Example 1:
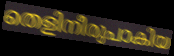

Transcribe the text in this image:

തെളിനീരുപാകിയ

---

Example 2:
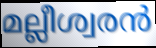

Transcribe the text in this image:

മല്ലീശ്വരൻ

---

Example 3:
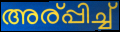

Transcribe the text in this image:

അര്പ്പിച്ച്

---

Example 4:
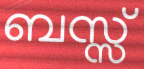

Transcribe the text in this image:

ബസ്സ്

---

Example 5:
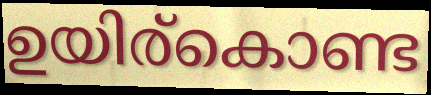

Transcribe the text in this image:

ഉയിര്കൊണ്ട